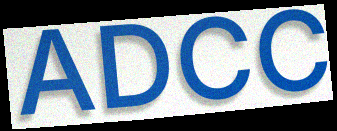
ADCC